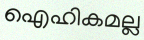
ഐഹികമല്ല